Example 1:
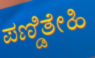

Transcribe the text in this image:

ಪಣ್ಡಿತೇಹಿ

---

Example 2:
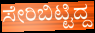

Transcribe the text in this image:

ಸೇರಿಬಿಟ್ಟಿದ್ದ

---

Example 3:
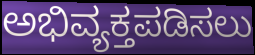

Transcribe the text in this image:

ಅಭಿವ್ಯಕ್ತಪಡಿಸಲು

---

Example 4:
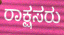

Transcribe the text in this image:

ರಾಕ್ಷಸರು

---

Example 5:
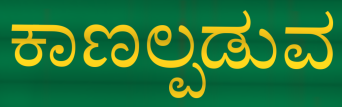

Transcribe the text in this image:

ಕಾಣಲ್ಪಡುವ